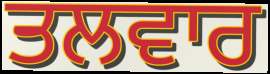
ਤਲਵਾਰ